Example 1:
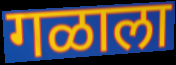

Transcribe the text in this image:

गळाला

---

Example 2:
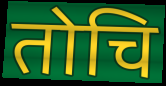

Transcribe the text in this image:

तोचि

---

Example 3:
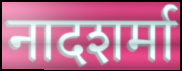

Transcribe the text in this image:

नादशर्मा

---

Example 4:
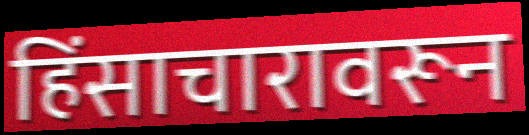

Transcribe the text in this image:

हिंसाचारावरून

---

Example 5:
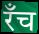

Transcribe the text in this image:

रँच